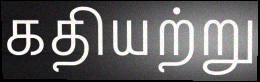
கதியற்று